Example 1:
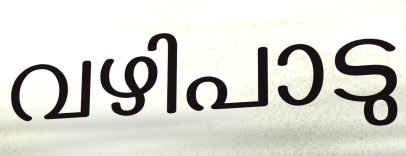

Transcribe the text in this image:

വഴിപാടു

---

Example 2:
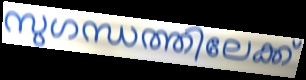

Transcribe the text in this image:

സുഗന്ധത്തിലേക്ക്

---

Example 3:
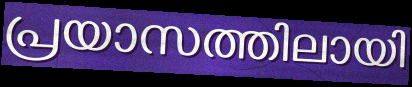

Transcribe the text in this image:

പ്രയാസത്തിലായി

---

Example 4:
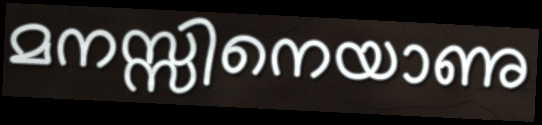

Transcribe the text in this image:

മനസ്സിനെയാണു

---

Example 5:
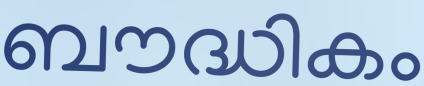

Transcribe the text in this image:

ബൗദ്ധികം